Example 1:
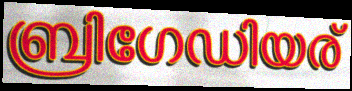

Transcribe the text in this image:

ബ്രിഗേഡിയര്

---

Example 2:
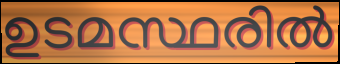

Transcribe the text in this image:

ഉടമസ്ഥരിൽ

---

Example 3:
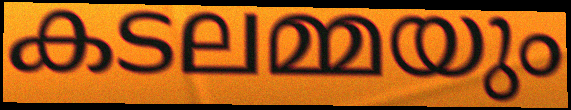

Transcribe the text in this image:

കടലമ്മയും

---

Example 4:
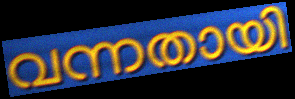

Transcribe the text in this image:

വന്നതായി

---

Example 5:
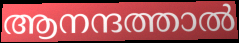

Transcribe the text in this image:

ആനന്ദത്താൽ